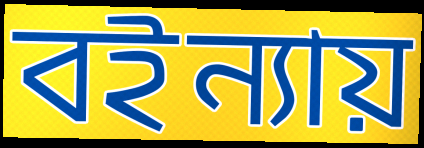
বইন্যায়